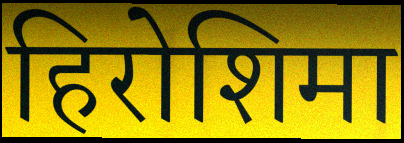
हिरोशिमा